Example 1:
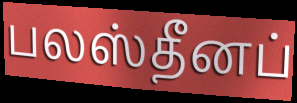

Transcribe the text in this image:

பலஸ்தீனப்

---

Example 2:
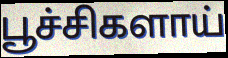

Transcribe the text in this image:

பூச்சிகளாய்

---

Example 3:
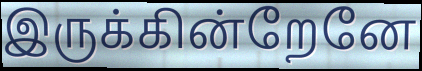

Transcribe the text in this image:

இருக்கின்றேனே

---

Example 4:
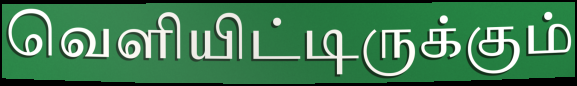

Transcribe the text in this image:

வெளியிட்டிருக்கும்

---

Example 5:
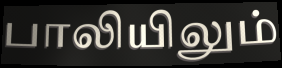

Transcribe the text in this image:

பாலியிலும்